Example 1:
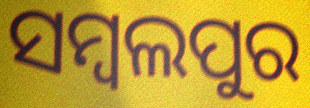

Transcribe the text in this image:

ସମ୍ବଲପୁର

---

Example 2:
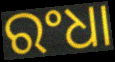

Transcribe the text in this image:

ରଂଧା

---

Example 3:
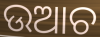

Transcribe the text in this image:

ଉଆଚ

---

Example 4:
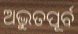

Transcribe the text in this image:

ଅଦ୍ଭୁତପୂର୍ବ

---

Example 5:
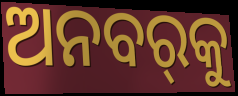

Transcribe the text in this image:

ଅନବର୍‌କୁ